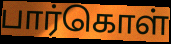
பார்கொள்